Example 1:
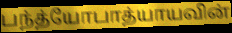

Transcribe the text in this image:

பந்த்யோபாத்யாயவின்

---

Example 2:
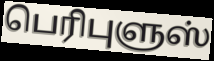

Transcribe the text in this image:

பெரிபுளுஸ்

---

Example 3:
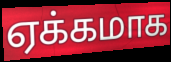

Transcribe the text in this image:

ஏக்கமாக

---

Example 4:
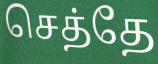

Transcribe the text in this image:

செத்தே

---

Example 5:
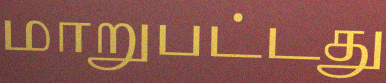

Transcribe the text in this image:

மாறுபட்டது